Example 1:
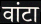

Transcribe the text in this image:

वांटा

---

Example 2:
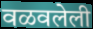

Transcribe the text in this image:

वळवलेली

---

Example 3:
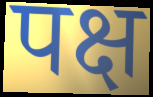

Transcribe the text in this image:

पक्ष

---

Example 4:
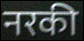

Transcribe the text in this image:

नरकी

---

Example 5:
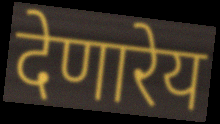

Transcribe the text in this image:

देणारेय